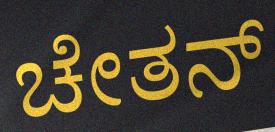
ಚೇತನ್